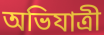
অভিযাত্রী